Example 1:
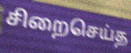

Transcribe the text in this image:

சிறைசெய்த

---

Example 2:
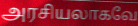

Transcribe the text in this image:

அரசியலாகவே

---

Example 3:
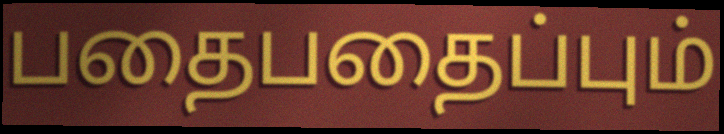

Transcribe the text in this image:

பதைபதைப்பும்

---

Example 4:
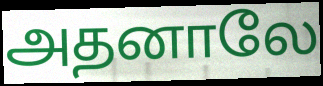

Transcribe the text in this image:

அதனாலே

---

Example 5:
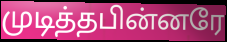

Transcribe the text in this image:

முடித்தபின்னரே